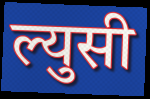
ल्युसी